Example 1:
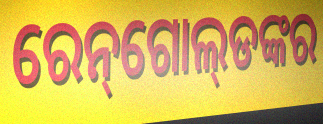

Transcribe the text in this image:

ରେନ୍‌ଗୋଲ୍‌ଡଙ୍କର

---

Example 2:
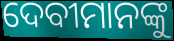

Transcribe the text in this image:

ଦେବୀମାନଙ୍କୁ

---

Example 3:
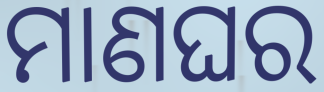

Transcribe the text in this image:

ମାଣଘର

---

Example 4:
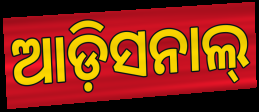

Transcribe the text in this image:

ଆଡ଼ିସନାଲ୍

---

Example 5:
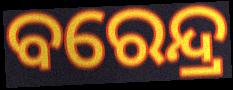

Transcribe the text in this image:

ବରେନ୍ଦ୍ର